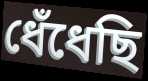
ধেঁধেছি